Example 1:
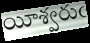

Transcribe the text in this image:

యీశ్వరుఁ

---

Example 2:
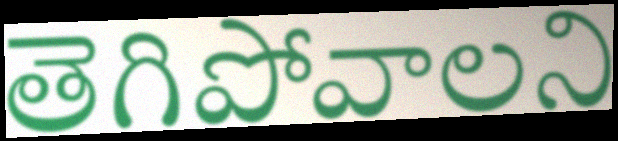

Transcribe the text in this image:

తెగిపోవాలని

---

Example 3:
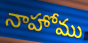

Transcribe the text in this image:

నాహోము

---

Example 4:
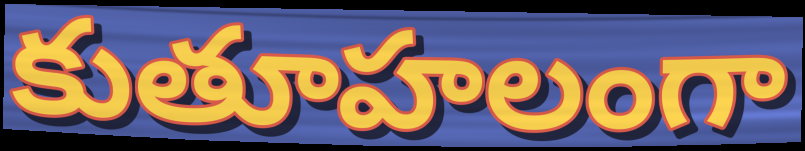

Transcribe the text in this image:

కుతూహలంగా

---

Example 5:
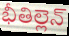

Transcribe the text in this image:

భీతిల్లెన్